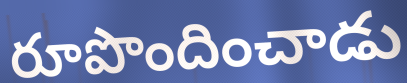
రూపొందించాడు